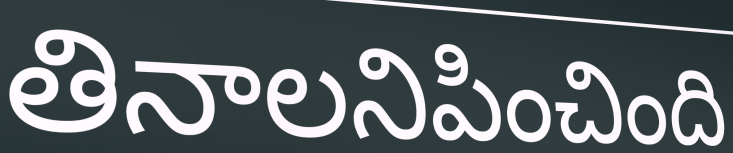
తినాలనిపించింది